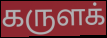
கருளக்